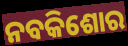
ନବକିଶୋର